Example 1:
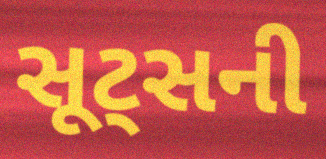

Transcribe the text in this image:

સૂટ્સની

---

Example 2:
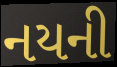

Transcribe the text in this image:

નયની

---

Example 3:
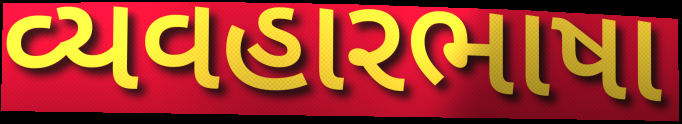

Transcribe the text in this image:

વ્યવહારભાષા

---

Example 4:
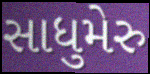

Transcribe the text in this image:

સાધુમેરુ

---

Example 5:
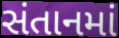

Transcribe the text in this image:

સંતાનમાં